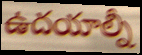
ఉదయాల్నీ